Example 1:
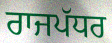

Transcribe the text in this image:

ਰਾਜਪੱਧਰ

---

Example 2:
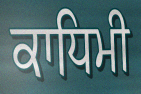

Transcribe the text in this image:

ਕਾਧਿਮੀ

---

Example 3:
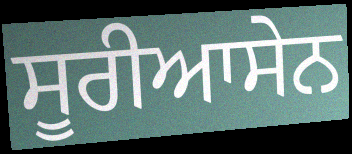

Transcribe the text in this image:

ਸੂਰੀਆਸੇਨ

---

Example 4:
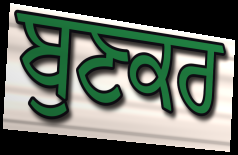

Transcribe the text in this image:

ਬੁਣਕਰ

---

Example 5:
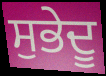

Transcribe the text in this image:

ਸੁਭੇਦੂ